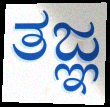
ತಜ್ಞ